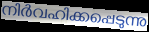
നിർവഹിക്കപ്പെടുന്നു